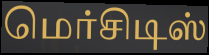
மெர்சிடிஸ்